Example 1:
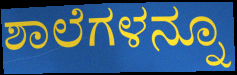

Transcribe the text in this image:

ಶಾಲೆಗಳನ್ನೂ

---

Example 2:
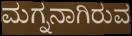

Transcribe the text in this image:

ಮಗ್ನನಾಗಿರುವ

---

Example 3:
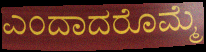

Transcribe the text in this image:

ಎಂದಾದರೊಮ್ಮೆ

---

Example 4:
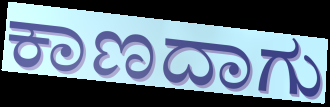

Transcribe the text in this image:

ಕಾಣದಾಗು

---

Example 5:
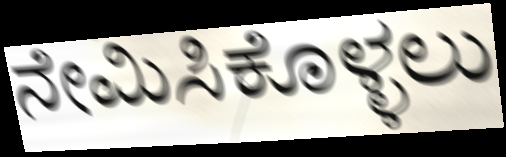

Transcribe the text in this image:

ನೇಮಿಸಿಕೊಳ್ಳಲು